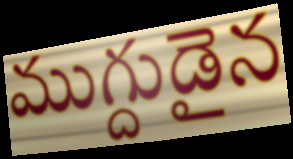
ముగ్దుడైన